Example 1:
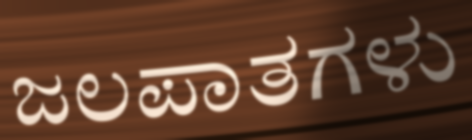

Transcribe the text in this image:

ಜಲಪಾತಗಳು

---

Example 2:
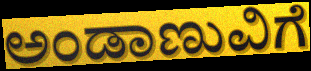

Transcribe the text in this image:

ಅಂಡಾಣುವಿಗೆ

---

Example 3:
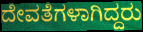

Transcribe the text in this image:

ದೇವತೆಗಳಾಗಿದ್ದರು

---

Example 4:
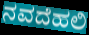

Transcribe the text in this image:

ನವದೆಹಲಿ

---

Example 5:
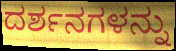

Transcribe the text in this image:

ದರ್ಶನಗಳನ್ನು